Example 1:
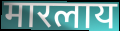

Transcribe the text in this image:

मारलाय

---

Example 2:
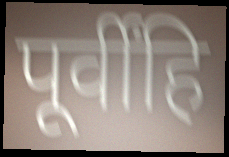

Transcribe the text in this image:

पूर्वींहि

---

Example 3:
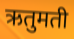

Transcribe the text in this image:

ऋतुमती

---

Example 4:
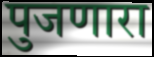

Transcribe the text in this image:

पुजणारा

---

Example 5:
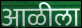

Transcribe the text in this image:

आळीला